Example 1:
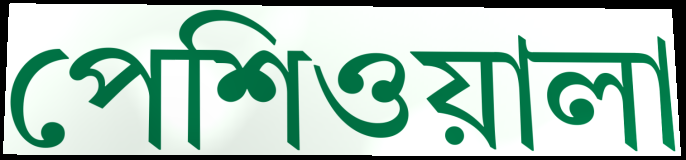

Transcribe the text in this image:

পেশিওয়ালা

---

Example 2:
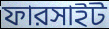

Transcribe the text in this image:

ফারসাইট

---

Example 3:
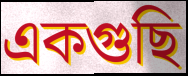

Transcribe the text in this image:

একগুছি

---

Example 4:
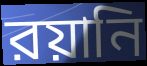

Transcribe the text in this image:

রয়ানি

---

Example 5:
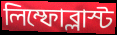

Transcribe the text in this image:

লিম্ফোব্লাস্ট